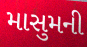
માસુમની